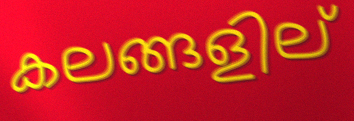
കലങ്ങളില്